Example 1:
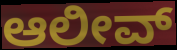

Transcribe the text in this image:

ಆಲೀವ್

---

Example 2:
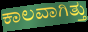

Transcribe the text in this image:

ಕಾಲವಾಗಿತ್ತು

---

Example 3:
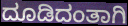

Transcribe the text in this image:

ದೂಡಿದಂತಾಗಿ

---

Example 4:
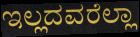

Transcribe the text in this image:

ಇಲ್ಲದವರೆಲ್ಲಾ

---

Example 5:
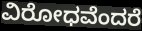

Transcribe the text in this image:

ವಿರೋಧವೆಂದರೆ